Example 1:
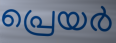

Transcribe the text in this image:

പ്രെയർ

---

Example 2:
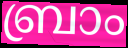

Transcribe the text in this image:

ബ്രാം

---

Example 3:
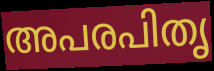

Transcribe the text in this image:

അപരപിതൃ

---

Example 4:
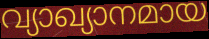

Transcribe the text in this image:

വ്യാഖ്യാനമായ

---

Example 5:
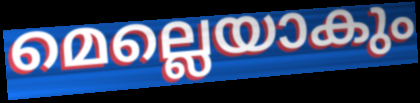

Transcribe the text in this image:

മെല്ലെയാകും